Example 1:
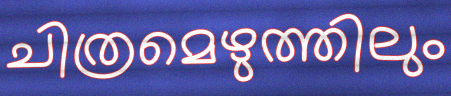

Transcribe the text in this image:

ചിത്രമെഴുത്തിലും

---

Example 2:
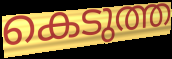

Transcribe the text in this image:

കെടുത്ത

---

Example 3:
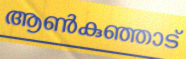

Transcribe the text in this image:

ആൺകുഞ്ഞാട്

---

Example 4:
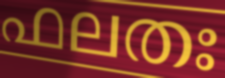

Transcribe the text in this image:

ഫലതഃ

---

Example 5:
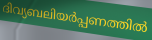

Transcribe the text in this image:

ദിവ്യബലിയർപ്പണത്തിൽ